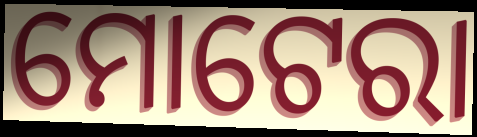
ମୋଟେରା